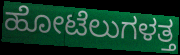
ಹೋಟೆಲುಗಳತ್ತ